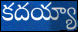
కదయ్యా